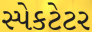
સ્પેકટેટર